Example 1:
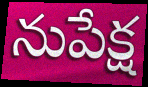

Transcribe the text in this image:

నుపేక్ష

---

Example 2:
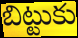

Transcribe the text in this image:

బిట్టుకు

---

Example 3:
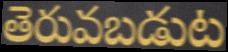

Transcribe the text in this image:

తెరువబడుట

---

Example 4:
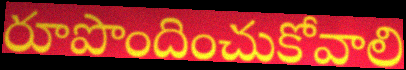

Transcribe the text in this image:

రూపొందించుకోవాలి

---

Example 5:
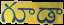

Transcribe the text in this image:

గూడా